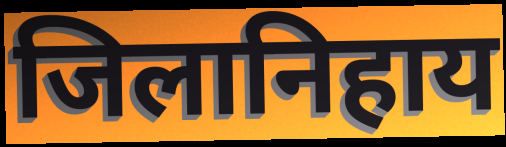
जिलानिहाय